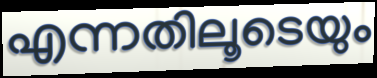
എന്നതിലൂടെയും